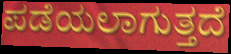
ಪಡೆಯಲಾಗುತ್ತದೆ